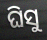
ଘିସୁ